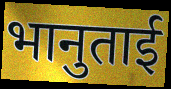
भानुताई